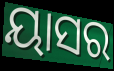
ୟାସର